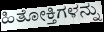
ಹಿತೋಕ್ತಿಗಳನ್ನು